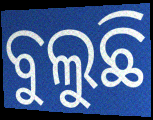
ବୁଲୁଛି